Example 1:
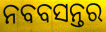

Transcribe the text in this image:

ନବବସନ୍ତର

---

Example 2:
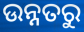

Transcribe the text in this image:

ଉନ୍ନତରୁ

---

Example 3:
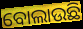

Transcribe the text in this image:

ବୋଲାଉଛି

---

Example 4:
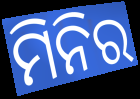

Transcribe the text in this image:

ମିନିର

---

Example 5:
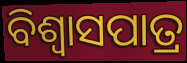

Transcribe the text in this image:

ବିଶ୍ୱାସପାତ୍ର